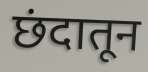
छंदातून